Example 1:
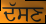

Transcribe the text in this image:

ਦੱਸਣ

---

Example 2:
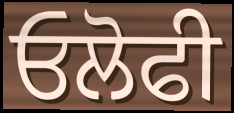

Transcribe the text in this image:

ਓਲੋਫੀ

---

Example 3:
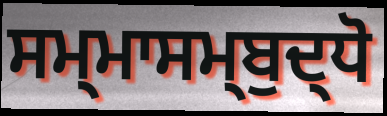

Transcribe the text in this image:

ਸਮ੍ਮਾਸਮ੍ਬੁਦ੍ਧੋ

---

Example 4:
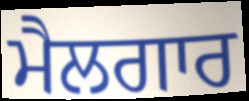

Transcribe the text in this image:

ਮੈਲਗਾਰ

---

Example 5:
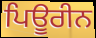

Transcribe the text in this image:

ਪਿਊਰੀਨ